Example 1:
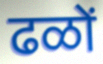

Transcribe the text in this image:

ढळों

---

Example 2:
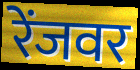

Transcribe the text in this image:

रेंजवर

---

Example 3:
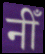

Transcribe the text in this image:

नीँ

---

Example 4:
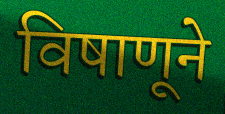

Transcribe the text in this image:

विषाणूने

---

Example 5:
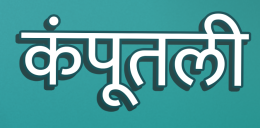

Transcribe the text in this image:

कंपूतली